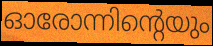
ഓരോന്നിന്റെയും